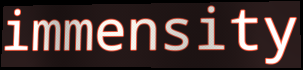
immensity